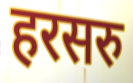
हरसरु